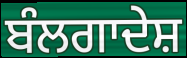
ਬੰਲਗਾਦੇਸ਼